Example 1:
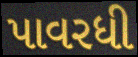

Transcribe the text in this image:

પાવરધી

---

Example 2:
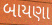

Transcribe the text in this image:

બાયણા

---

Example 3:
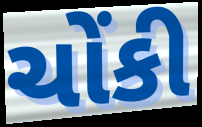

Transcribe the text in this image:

ચોંકી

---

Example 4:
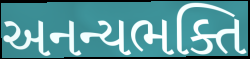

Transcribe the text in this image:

અનન્યભક્તિ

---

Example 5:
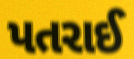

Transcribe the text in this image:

પતરાઈ